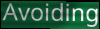
Avoiding